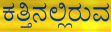
ಕತ್ತಿನಲ್ಲಿರುವ